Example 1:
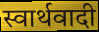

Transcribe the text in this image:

स्वार्थवादी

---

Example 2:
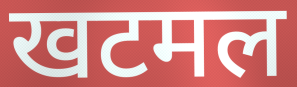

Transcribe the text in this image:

खटमल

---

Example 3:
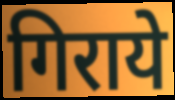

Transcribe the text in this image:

गिराये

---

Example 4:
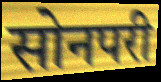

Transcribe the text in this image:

सोनपरी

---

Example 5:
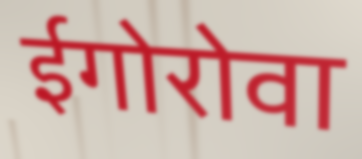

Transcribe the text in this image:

ईगोरोवा